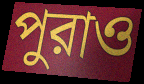
পুরাও